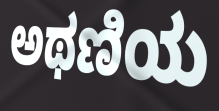
ಅಥಣಿಯ